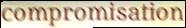
compromisation